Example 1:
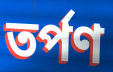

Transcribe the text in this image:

তৰ্পণ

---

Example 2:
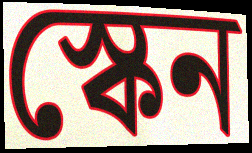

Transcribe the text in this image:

স্কেন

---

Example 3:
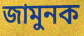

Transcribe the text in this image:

জামুনক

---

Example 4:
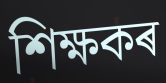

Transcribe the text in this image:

শিক্ষকৰ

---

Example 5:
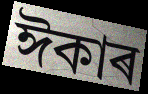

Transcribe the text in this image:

ঈকাৰ